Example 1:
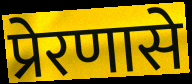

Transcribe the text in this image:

प्रेरणासे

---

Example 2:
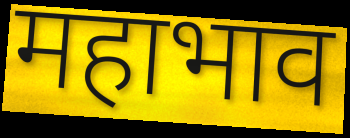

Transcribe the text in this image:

महाभाव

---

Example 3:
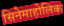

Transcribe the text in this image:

सिनेमाहोलिक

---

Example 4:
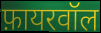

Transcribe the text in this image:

फ़ायरवॉल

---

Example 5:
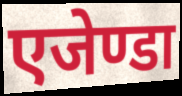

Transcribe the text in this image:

एजेण्डा